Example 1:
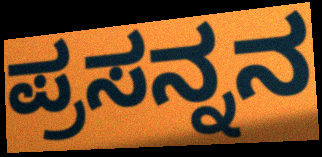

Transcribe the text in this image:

ಪ್ರಸನ್ನನ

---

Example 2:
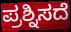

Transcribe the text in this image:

ಪ್ರಶ್ನಿಸದೆ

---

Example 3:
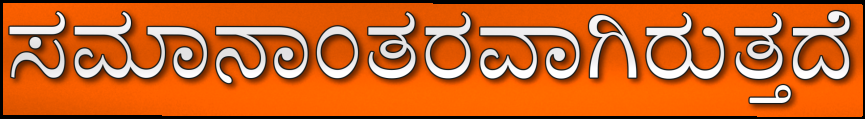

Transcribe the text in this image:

ಸಮಾನಾಂತರವಾಗಿರುತ್ತದೆ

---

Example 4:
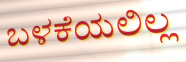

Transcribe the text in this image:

ಬಳಕೆಯಲಿಲ್ಲ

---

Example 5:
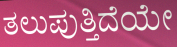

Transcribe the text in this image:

ತಲುಪುತ್ತಿದೆಯೇ